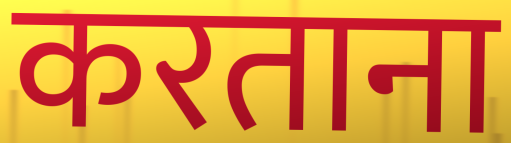
करताना